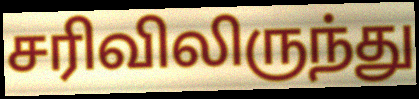
சரிவிலிருந்து